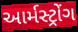
આર્મસ્ટ્રોંગ